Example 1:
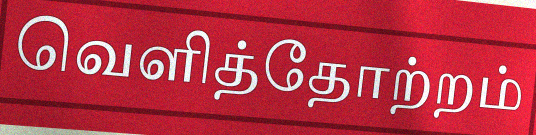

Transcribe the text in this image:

வெளித்தோற்றம்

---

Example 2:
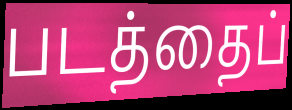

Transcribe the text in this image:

படத்தைப்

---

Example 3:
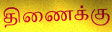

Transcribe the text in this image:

திணைக்கு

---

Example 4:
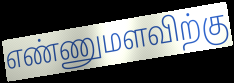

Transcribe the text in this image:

எண்ணுமளவிற்கு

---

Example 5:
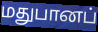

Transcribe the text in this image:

மதுபானப்